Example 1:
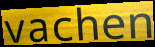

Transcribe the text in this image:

vachen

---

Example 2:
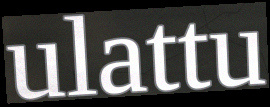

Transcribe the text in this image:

ulattu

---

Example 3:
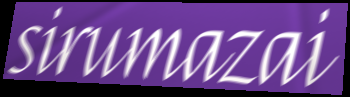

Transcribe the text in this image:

sirumazai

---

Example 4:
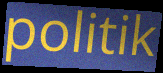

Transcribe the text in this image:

politik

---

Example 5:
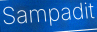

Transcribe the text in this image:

Sampadit